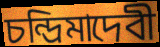
চন্দ্রিমাদেবী